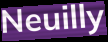
Neuilly